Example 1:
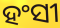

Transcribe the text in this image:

ହଂସୀ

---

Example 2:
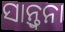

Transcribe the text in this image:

ସାନ୍ତ୍ବନା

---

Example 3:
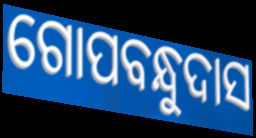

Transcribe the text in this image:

ଗୋପବନ୍ଧୁଦାସ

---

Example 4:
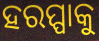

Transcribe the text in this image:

ହରପ୍ପାକୁ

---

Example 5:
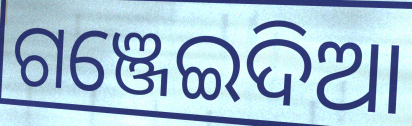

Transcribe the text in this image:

ଗଞ୍ଜେଇଦିଆ